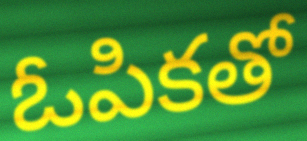
ఓపికతో